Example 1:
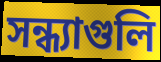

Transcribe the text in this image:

সন্ধ্যাগুলি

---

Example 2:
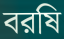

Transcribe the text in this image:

বরষি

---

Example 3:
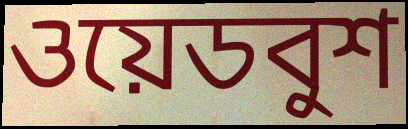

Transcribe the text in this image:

ওয়েডবুশ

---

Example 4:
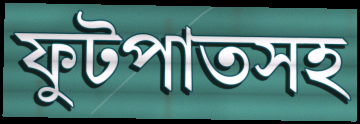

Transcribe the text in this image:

ফুটপাতসহ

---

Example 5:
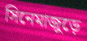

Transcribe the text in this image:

সিনেমাজুড়ে